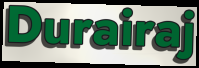
Durairaj